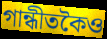
গান্ধীতকৈও